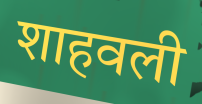
शाहवली